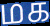
மக